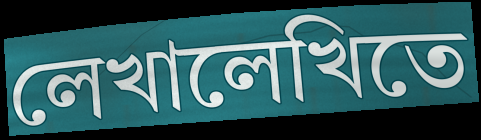
লেখালেখিতে